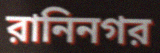
রানিনগর